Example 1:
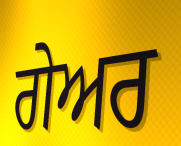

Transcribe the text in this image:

ਗੇਅਰ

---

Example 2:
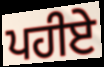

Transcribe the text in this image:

ਪਹੀਏ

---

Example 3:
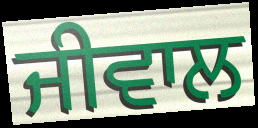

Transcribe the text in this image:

ਜੀਵਾਲ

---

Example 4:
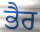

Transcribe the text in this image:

ਭੈਰ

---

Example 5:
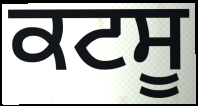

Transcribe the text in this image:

ਕਟਸੂ